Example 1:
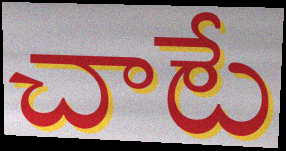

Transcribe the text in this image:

చాటే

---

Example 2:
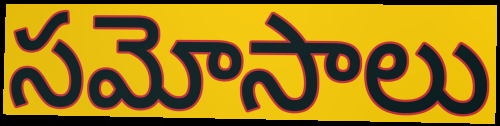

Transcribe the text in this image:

సమోసాలు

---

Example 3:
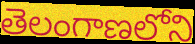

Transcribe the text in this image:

తెలంగాణలోని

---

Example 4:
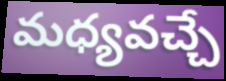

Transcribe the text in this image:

మధ్యవచ్చే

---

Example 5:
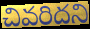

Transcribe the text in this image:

చివరిదని